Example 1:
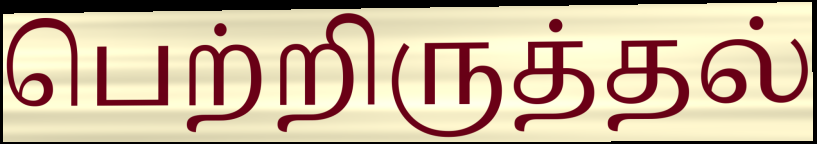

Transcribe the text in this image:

பெற்றிருத்தல்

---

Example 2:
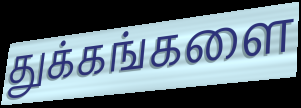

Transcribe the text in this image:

துக்கங்களை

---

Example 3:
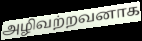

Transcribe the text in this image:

அழிவற்றவனாக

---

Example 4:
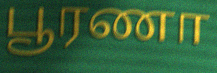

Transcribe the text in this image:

பூரணா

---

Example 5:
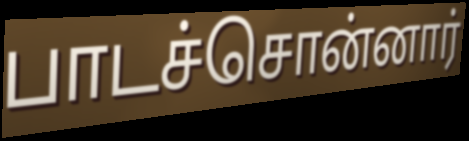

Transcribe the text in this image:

பாடச்சொன்னார்